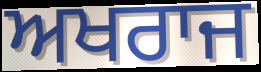
ਅਖਰਾਜ